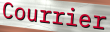
Courrier